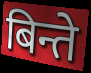
बिन्ते